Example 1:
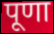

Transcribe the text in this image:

पूणा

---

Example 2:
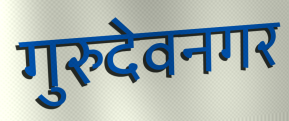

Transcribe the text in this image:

गुरुदेवनगर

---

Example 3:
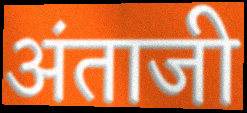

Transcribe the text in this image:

अंताजी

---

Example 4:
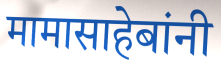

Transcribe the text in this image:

मामासाहेबांनी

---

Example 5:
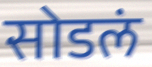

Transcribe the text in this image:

सोडलं